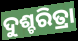
ଦୁଶ୍ଚରିତ୍ରା